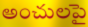
అంచులపై